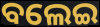
ବଲେଇ